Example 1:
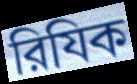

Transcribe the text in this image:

রিযিক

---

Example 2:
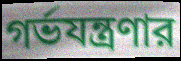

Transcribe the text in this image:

গর্ভযন্ত্রণার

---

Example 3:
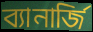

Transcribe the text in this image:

ব্যানার্জি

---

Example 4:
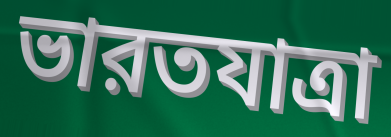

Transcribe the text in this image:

ভারতযাত্রা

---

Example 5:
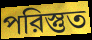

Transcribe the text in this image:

পরিস্তুত